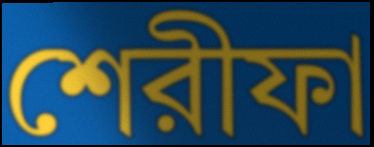
শেরীফা